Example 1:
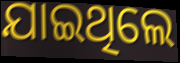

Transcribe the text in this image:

ଯାଇଥିଲେ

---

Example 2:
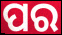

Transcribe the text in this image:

ପର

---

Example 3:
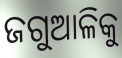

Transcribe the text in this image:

ଜଗୁଆଳିକୁ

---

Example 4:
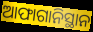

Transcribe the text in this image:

ଆଫାଗାନିସ୍ଥାନ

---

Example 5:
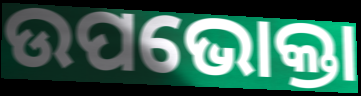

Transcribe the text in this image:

ଉପଭୋକ୍ତା